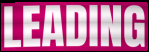
LEADING